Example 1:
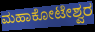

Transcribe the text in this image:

ಮಹಾಕೋಟೇಶ್ವರ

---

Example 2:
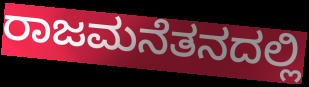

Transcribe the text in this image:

ರಾಜಮನೆತನದಲ್ಲಿ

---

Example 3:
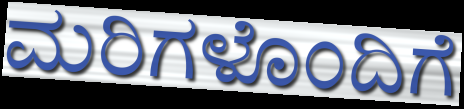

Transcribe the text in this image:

ಮರಿಗಳೊಂದಿಗೆ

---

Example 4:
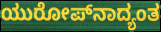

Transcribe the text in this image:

ಯುರೋಪ್‌ನಾದ್ಯಂತ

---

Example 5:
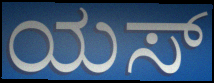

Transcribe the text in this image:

ಯಸ್